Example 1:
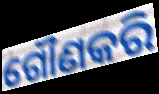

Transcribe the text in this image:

ଗୌଣକରି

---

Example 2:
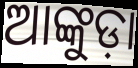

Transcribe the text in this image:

ଆଙ୍କୁଡ଼ା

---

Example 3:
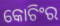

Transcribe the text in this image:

କୋଚିଂର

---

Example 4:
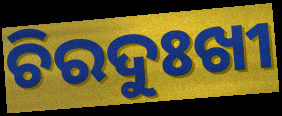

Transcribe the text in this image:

ଚିରଦୁଃଖୀ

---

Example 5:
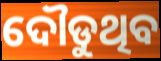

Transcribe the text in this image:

ଦୌଡୁଥିବ